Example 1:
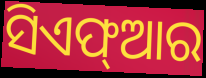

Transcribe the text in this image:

ସିଏଫ୍ଆର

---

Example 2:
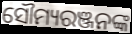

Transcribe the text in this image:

ସୌମ୍ୟରଞ୍ଜନଙ୍କ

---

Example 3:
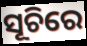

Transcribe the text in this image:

ସୂଚିରେ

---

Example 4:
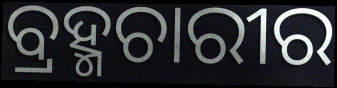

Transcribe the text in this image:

ବ୍ରହ୍ମଚାରୀର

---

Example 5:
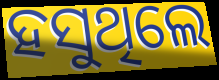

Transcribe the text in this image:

ହସୁଥିଲେ